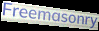
Freemasonry